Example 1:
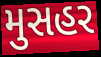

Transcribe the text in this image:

મુસહર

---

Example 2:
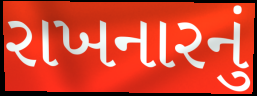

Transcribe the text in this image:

રાખનારનું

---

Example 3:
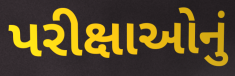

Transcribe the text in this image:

પરીક્ષાઓનું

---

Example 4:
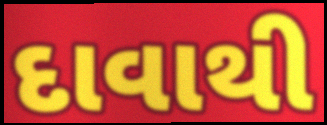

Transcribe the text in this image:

દાવાથી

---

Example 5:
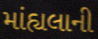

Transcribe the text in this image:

માંહ્યલાની